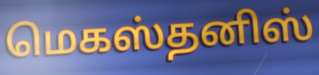
மெகஸ்தனிஸ்